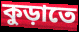
কুড়াতে